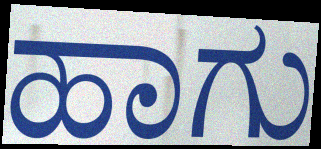
ಹಾಗು